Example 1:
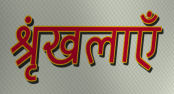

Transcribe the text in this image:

श्रृंखलाएँ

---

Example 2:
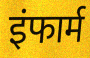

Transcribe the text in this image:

इंफार्म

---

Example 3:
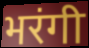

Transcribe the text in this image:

भरंगी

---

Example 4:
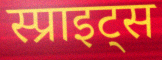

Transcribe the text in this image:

स्प्राइट्स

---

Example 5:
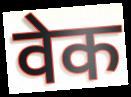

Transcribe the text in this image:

वेक